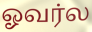
ஓவர்ல